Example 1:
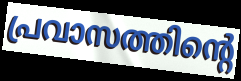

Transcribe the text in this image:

പ്രവാസത്തിന്റെ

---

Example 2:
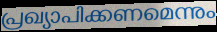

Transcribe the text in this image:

പ്രഖ്യാപിക്കണമെന്നും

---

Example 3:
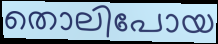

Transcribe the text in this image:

തൊലിപോയ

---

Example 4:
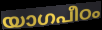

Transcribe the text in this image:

യാഗപീഠം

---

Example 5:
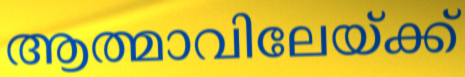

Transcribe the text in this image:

ആത്മാവിലേയ്ക്ക്